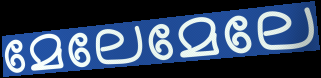
മേലേമേലേ